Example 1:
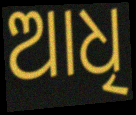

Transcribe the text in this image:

ଆଧି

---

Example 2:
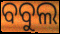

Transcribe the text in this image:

ବବୁଲ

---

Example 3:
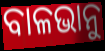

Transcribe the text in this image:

ବାଳଭାନୁ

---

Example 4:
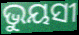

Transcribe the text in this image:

ଭୁୟସୀ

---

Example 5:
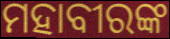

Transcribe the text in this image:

ମହାବୀରଙ୍କ